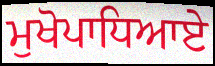
ਮੁਖੋਪਾਧਿਆਏ